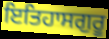
ਇਤਿਹਾਸਗੁਰੂ